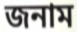
জনাম